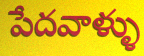
పేదవాళ్ళు